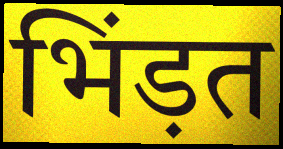
भिंड़त